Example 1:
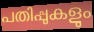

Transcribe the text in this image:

പതിപ്പുകളും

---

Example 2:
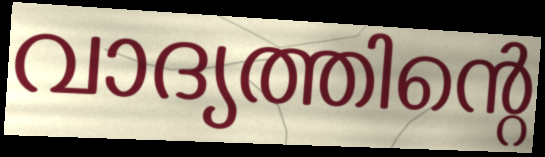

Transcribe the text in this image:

വാദ്യത്തിന്റെ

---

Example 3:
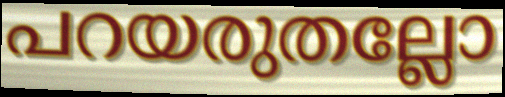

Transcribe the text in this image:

പറയരുതല്ലോ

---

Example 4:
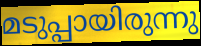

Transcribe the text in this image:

മടുപ്പായിരുന്നു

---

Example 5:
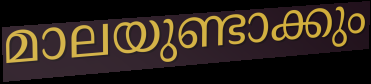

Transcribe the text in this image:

മാലയുണ്ടാക്കും